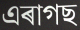
এৰাগছ